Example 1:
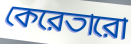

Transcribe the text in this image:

কেরেতারো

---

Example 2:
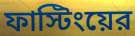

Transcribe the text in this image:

ফাস্টিংয়ের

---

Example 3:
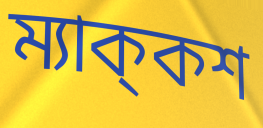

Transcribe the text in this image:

ম্যাক্‌কশ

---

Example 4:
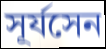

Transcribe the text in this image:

সূর্যসেন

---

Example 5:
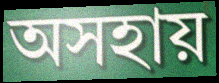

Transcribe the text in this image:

অসহায়